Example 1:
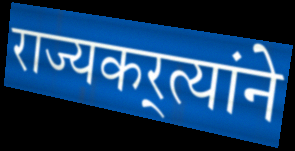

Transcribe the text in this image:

राज्यकर्त्यांने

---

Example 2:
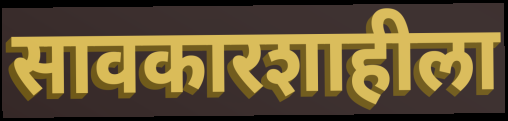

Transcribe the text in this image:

सावकारशाहीला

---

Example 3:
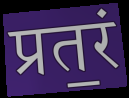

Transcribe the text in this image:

प्रत॒रं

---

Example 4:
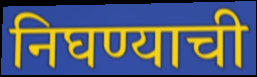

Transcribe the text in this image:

निघण्याची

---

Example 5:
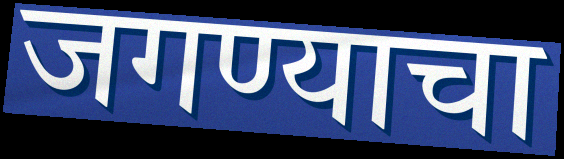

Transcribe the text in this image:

जगण्याचा